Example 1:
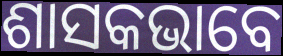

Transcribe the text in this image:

ଶାସକଭାବେ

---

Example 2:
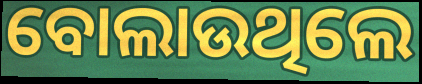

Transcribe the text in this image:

ବୋଲାଉଥିଲେ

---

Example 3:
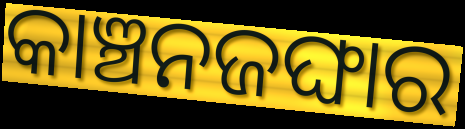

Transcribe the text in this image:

କାଞ୍ଚନଜଙ୍ଘାର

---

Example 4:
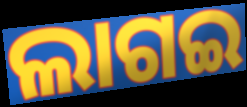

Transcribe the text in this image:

ଲାଗଇ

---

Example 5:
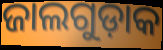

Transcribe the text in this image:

ଜାଲଗୁଡ଼ାକ